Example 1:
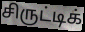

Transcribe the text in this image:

சிருட்டிக்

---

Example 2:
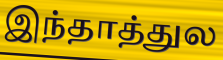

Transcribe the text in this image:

இந்தாத்துல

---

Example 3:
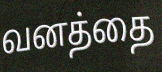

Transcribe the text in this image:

வனத்தை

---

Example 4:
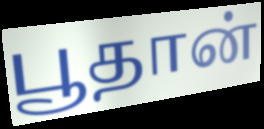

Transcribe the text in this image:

பூதான்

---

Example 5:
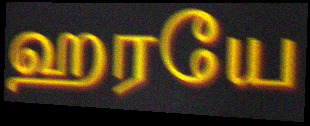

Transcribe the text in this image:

ஹரயே